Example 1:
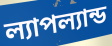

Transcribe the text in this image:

ল্যাপল্যান্ড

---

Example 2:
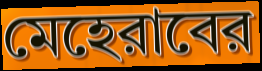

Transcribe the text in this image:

মেহেরাবের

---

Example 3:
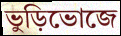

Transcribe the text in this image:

ভুড়িভোজে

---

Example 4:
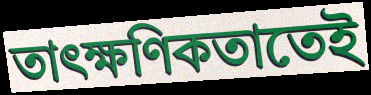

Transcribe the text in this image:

তাৎক্ষণিকতাতেই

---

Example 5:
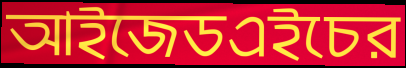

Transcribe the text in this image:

আইজেডএইচের